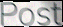
Post